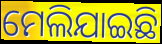
ମେଲିଯାଇଛି